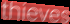
thieves